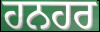
ਹਨਹਰ